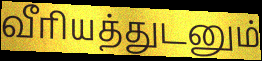
வீரியத்துடனும்